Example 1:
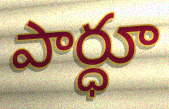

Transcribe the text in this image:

పార్ధూ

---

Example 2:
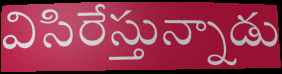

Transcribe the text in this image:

విసిరేస్తున్నాడు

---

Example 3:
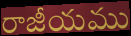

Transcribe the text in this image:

రాజీయము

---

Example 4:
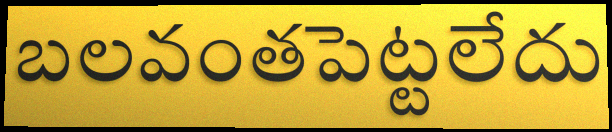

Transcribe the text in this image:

బలవంతపెట్టలేదు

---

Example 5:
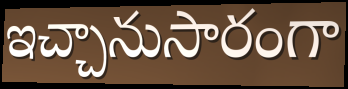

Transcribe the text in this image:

ఇచ్చానుసారంగా